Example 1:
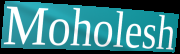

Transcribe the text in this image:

Moholesh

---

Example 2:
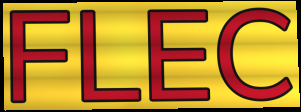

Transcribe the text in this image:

FLEC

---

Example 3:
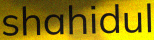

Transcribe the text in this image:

shahidul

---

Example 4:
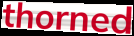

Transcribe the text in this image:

thorned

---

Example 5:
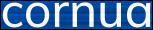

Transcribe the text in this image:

cornua